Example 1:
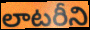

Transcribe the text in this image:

లాటరీని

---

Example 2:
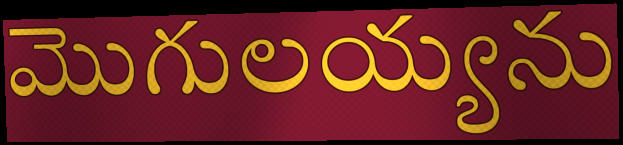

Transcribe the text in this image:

మొగులయ్యను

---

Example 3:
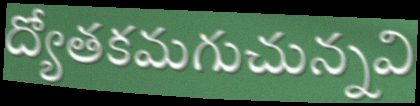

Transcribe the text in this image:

ద్యోతకమగుచున్నవి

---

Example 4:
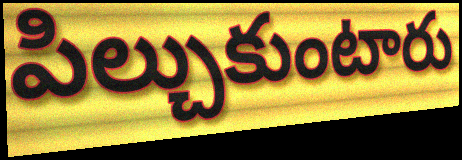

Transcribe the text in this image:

పిల్చుకుంటారు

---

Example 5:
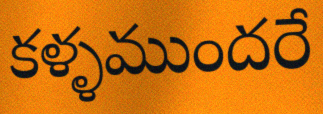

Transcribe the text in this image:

కళ్ళముందరే